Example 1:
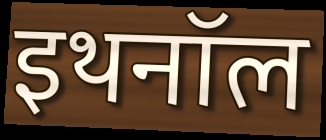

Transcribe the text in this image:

इथनॉल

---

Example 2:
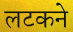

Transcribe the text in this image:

लटकने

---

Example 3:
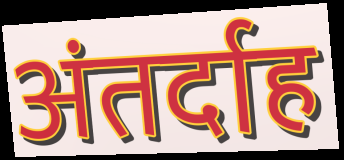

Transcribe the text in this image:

अंतर्दाह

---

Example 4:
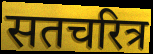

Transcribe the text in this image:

सतचरित्र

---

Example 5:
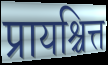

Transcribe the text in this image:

प्रायश्चित्त